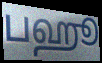
பஹூ